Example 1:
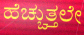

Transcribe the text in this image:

ಹೆಚ್ಚುತ್ತಲೇ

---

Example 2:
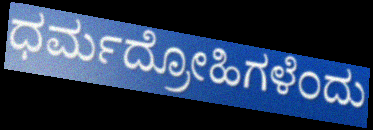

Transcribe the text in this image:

ಧರ್ಮದ್ರೋಹಿಗಳೆಂದು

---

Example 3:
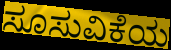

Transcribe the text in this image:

ಸೂಸುವಿಕೆಯ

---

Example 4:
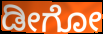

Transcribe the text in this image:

ಡೀಗೋ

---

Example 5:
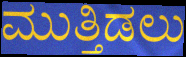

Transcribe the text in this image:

ಮುತ್ತಿಡಲು